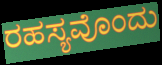
ರಹಸ್ಯವೊಂದು